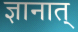
ज्ञानात्